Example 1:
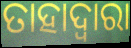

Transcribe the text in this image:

ତାହାଦ୍ଵାରା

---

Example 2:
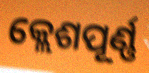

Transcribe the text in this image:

କ୍ଲେଶପୂର୍ଣ୍ଣ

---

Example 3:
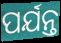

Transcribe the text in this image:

ପର୍ଯନ୍ତ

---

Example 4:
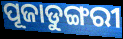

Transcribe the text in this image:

ପୂଜାଡୁଙ୍ଗରୀ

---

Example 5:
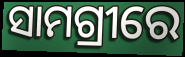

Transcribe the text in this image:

ସାମଗ୍ରୀରେ